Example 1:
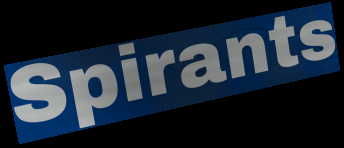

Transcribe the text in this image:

Spirants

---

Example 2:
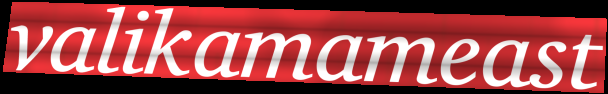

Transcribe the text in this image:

valikamameast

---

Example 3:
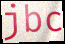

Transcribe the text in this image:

jbc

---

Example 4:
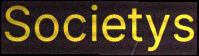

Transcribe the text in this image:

Societys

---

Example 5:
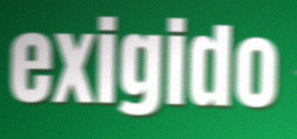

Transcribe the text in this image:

exigido